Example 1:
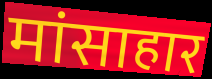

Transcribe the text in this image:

मांसाहार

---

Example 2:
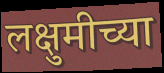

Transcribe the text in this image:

लक्षुमीच्या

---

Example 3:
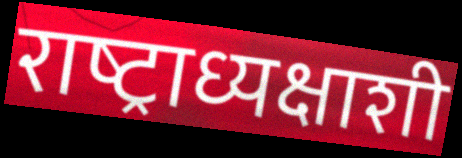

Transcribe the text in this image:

राष्ट्राध्यक्षाशी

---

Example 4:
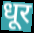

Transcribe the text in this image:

धूर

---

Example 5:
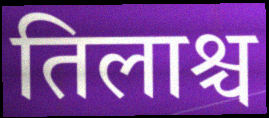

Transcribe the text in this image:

तिलाश्च